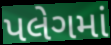
પલેગમાં